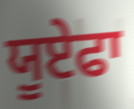
ਯੂਏਫਾ